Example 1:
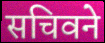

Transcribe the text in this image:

सचिवने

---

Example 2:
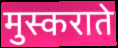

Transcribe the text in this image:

मुस्कराते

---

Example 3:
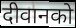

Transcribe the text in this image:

दीवानको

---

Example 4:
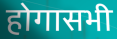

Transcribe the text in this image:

होगासभी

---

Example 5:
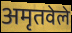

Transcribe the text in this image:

अमृतवेले